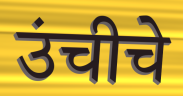
उंचीचे